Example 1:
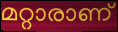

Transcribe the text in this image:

മറ്റാരാണ്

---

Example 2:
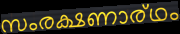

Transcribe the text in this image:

സംരക്ഷണാര്ഥം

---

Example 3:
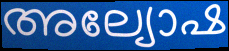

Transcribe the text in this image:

അല്യോഷ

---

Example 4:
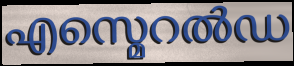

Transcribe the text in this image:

എസ്മെറൽഡ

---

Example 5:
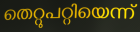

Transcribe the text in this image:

തെറ്റുപറ്റിയെന്ന്